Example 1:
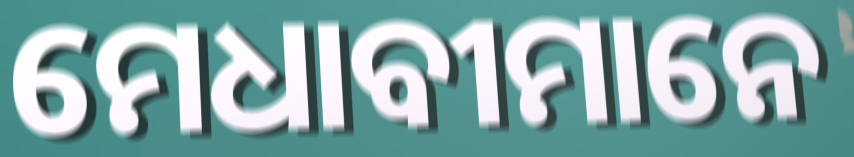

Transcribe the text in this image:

ମେଧାବୀମାନେ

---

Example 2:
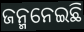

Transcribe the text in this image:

ଜନ୍ମନେଇଛି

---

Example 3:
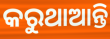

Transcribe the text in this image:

କରୁଥାଆନ୍ତି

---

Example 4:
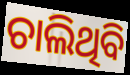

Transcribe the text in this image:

ଚାଲିଥିବି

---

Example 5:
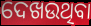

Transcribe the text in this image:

ଦେଖଉଥିବା